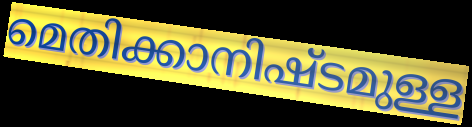
മെതിക്കാനിഷ്ടമുള്ള